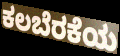
ಕಲಬೆರಕೆಯ